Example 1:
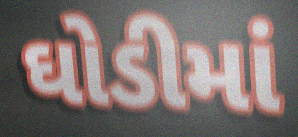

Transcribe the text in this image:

ઘોડીમાં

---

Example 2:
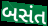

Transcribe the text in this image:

બસંત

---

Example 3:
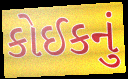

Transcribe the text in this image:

કોઈકનું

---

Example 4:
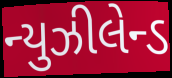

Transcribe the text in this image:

ન્યુઝીલેન્ડ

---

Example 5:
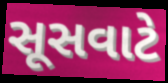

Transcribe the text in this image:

સૂસવાટે